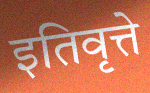
इतिवृत्ते